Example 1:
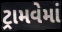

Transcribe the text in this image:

ટ્રામવેમાં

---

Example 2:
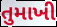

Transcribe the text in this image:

તુમાખી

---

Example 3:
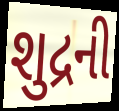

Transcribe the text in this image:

શુદ્રની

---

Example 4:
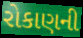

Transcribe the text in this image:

રોકાણની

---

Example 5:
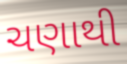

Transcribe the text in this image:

ચણાથી